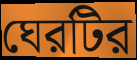
ঘেরটির